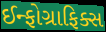
ઈન્ફોગ્રાફિક્સ